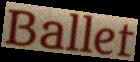
Ballet